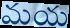
మయ